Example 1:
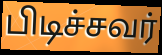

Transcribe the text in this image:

பிடிச்சவர்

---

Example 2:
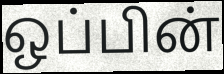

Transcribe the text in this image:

ஒப்பின்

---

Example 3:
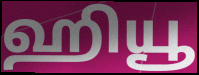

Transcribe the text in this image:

ஹியூ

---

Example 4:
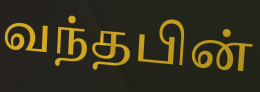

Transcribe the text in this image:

வந்தபின்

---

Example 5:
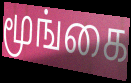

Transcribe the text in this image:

மூங்கை